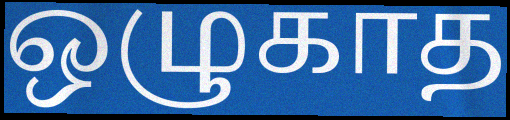
ஒழுகாத